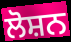
ਲੋਸ਼ਨ